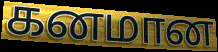
கனமான